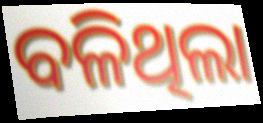
ବଳିଥିଲା